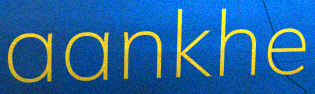
aankhe